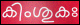
കിംശുകഃ